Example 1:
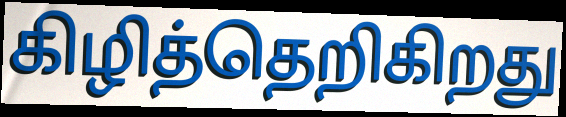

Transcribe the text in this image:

கிழித்தெறிகிறது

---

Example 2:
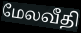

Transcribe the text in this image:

மேலவீதி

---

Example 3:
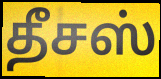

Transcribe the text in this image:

தீசஸ்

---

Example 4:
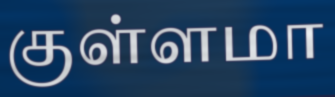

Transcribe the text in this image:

குள்ளமா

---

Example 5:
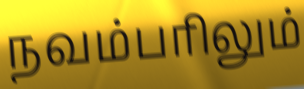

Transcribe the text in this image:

நவம்பரிலும்